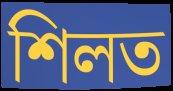
শিলত